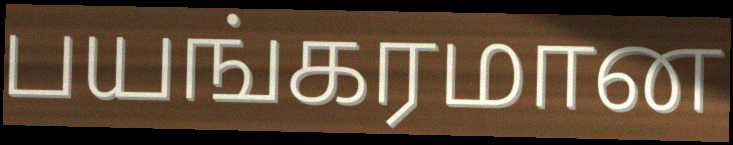
பயங்கரமான